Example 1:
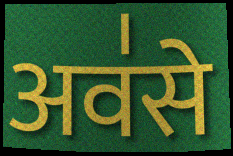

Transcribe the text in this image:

अव॑से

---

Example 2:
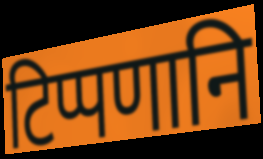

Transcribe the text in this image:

टिप्पणानि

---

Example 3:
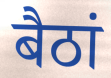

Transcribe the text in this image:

बैठां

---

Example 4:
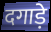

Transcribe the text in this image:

दगाड़े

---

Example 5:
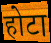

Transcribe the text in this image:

होटा